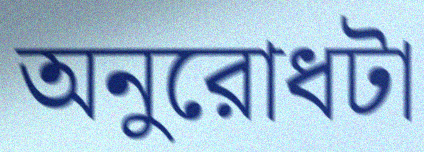
অনুরোধটা